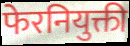
फेरनियुक्ती